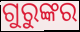
ଗୁରୁଙ୍କର